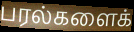
பரல்களைக்